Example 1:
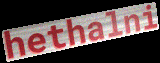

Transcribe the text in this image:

hethalni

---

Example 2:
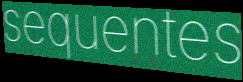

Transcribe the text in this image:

sequentes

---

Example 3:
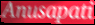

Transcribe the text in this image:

Anusapati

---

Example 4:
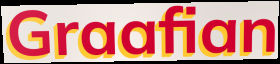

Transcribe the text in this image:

Graafian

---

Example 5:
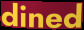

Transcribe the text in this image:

dined